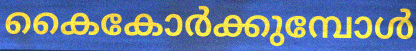
കൈകോർക്കുമ്പോൾ